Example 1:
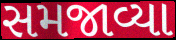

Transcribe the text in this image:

સમજાવ્યા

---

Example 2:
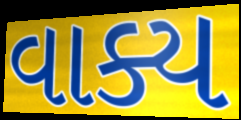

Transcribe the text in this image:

વાક્ય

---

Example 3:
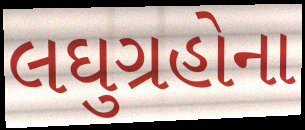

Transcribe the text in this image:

લઘુગ્રહોના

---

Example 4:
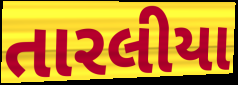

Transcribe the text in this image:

તારલીયા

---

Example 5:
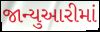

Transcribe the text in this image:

જાન્યુઆરીમાં